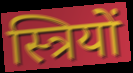
स्त्रियों